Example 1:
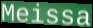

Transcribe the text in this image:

Meissa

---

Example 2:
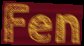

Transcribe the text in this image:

Fen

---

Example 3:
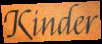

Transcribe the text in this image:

Kinder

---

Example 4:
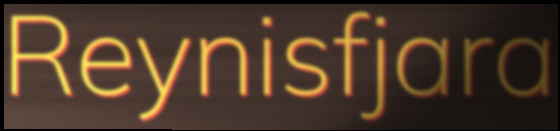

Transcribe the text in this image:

Reynisfjara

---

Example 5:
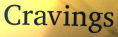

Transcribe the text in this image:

Cravings